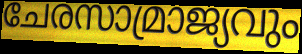
ചേരസാമ്രാജ്യവും